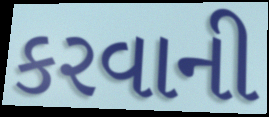
કરવાની